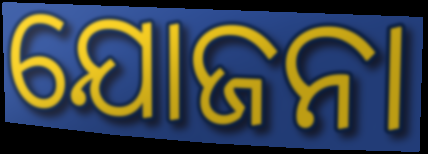
ଯୋଜନା